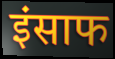
इंसाफ